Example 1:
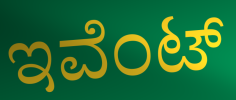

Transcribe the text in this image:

ಇವೆಂಟ್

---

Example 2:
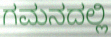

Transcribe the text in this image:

ಗಮನದಲ್ಲಿ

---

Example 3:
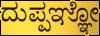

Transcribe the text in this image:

ದುಪ್ಪಞ್ಞೋ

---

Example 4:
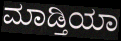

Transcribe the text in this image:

ಮಾಡ್ತಿಯಾ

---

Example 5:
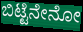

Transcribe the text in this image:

ಬಿಟ್ಟೆನೇನೋ